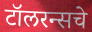
टॉलरन्सचे